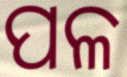
ପଳ